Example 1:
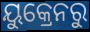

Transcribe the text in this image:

ୟୁକ୍ରେନରୁ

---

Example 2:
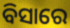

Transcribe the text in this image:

ବିସାରେ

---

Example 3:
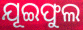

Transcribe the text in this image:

ଯୂଇଫୁଲ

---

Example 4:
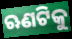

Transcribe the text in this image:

ଋଣଟିକୁ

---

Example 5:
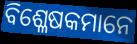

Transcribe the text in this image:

ବିଶ୍ଳେଷକମାନେ